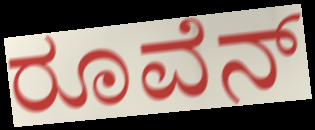
ರೂವೆನ್